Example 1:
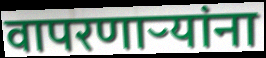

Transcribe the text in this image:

वापरणाऱ्यांना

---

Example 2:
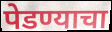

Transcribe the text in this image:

पेडण्याचा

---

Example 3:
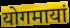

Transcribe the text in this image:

योगमायां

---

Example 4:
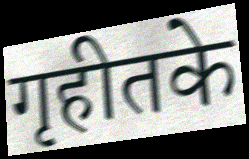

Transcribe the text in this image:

गृहीतके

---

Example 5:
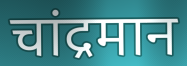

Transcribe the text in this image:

चांद्रमान